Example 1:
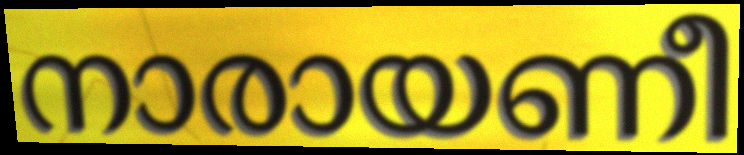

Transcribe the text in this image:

നാരായണീ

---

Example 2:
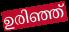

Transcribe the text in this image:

ഉരിഞ്ഞ്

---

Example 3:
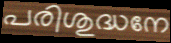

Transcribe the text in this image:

പരിശുദ്ധനേ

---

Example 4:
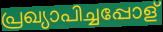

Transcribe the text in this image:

പ്രഖ്യാപിച്ചപ്പോള്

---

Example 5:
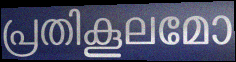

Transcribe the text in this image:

പ്രതികൂലമോ